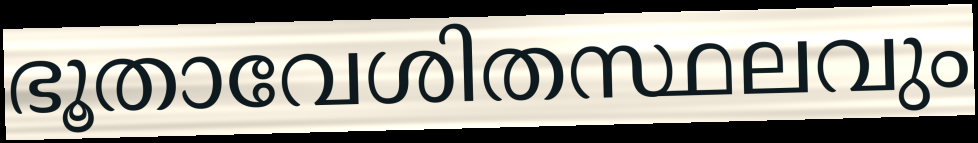
ഭൂതാവേശിതസ്ഥലവും